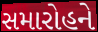
સમારોહને